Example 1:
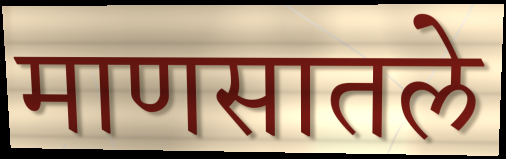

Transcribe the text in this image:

माणसातले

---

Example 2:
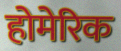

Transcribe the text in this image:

होमेरिक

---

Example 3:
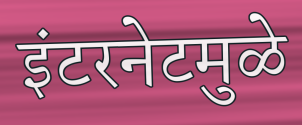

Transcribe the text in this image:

इंटरनेटमुळे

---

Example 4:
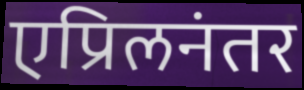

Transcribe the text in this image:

एप्रिलनंतर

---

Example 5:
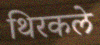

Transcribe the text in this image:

थिरकले